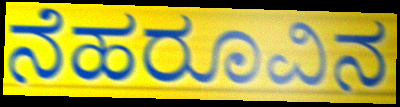
ನೆಹರೂವಿನ